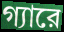
গ্যারে